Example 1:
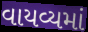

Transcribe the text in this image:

વાયવ્યમાં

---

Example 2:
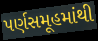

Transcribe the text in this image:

પર્ણસમૂહમાંથી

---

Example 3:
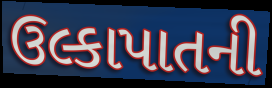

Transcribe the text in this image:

ઉલ્કાપાતની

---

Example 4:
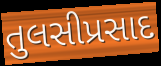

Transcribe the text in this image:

તુલસીપ્રસાદ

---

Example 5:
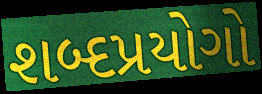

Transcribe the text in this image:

શબ્દપ્રયોગો